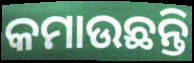
କମାଉଛନ୍ତି